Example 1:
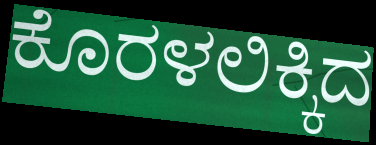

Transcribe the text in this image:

ಕೊರಳಲಿಕ್ಕಿದ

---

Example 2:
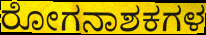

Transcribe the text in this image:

ರೋಗನಾಶಕಗಳ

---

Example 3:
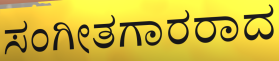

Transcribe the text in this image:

ಸಂಗೀತಗಾರರಾದ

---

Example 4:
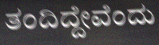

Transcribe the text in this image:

ತಂದಿದ್ದೇವೆಂದು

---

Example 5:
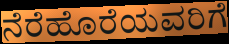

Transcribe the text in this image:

ನೆರೆಹೊರೆಯವರಿಗೆ